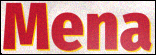
Mena